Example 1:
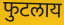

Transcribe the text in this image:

फुटलाय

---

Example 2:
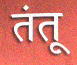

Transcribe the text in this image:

तंतू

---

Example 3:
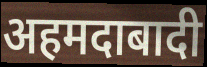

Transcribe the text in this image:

अहमदाबादी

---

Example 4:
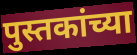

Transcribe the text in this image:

पुस्तकांच्या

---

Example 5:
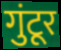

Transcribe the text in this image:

गुंटूर